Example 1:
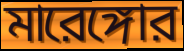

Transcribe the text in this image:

মারেঙ্গোর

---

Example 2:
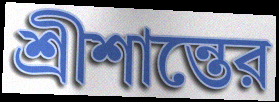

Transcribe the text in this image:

শ্রীশান্তের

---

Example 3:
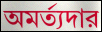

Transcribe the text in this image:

অমর্ত্যদার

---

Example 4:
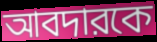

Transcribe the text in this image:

আবদারকে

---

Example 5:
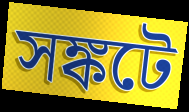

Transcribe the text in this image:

সঙ্কটে